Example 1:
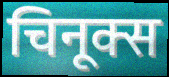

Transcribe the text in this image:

चिनूक्स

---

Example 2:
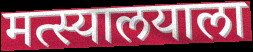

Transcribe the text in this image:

मत्स्यालयाला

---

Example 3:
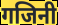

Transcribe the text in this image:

गजिनी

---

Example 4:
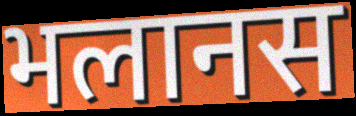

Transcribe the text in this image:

भलानस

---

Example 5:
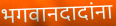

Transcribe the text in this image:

भगवानदादांना